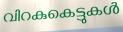
വിറകുകെട്ടുകൾ